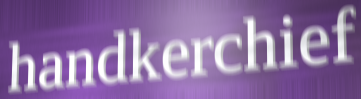
handkerchief